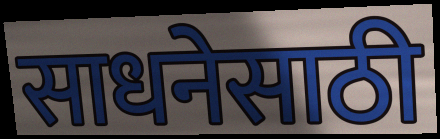
साधनेसाठी